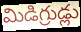
మిడిగ్రుడ్లు